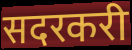
सदरकरी